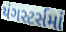
યંગસ્ટર્સમાં